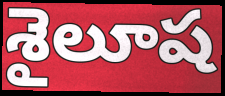
శైలూష